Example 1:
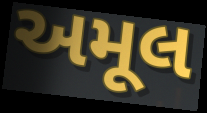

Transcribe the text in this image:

અમૂલ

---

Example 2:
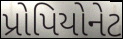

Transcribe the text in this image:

પ્રોપિયોનેટ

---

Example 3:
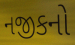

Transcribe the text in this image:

નજીકનો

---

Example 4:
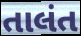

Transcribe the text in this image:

તાલંત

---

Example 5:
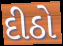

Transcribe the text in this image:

દીઠો